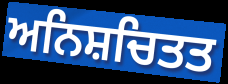
ਅਨਿਸ਼ਚਿਤਤ